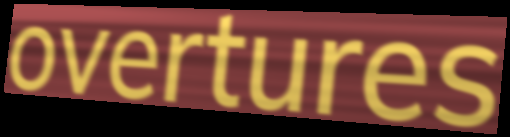
overtures